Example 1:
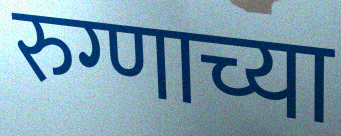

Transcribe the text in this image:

रुग्णाच्या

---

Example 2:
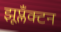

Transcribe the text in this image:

झूप्लँक्टन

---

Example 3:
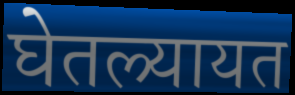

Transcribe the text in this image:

घेतल्यायत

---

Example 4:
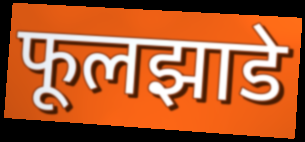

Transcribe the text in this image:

फूलझाडे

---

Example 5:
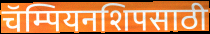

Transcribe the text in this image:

चॅम्पियनशिपसाठी